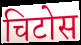
चिटोस